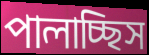
পালাচ্ছিস